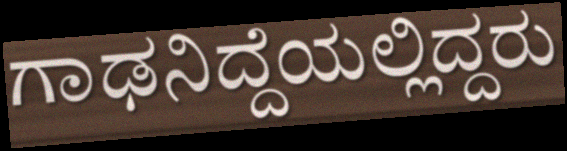
ಗಾಢನಿದ್ದೆಯಲ್ಲಿದ್ದರು